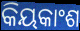
କିୟକାଂଶ